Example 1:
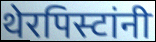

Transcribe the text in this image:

थेरपिस्टांनी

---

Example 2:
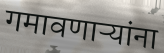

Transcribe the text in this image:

गमावणाऱ्यांना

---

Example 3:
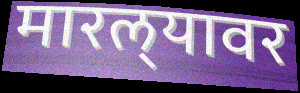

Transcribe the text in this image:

मारल्यावर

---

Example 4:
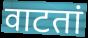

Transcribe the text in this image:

वाटतां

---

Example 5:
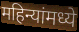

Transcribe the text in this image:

महिन्यांमध्ये